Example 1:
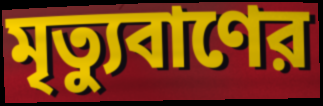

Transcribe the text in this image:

মৃত্যুবাণের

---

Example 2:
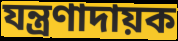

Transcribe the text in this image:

যন্ত্রণাদায়ক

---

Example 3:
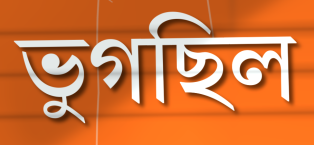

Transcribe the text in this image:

ভুগছিল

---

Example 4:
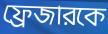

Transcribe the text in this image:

ফ্রেজারকে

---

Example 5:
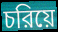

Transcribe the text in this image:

চরিয়ে